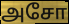
அசோ